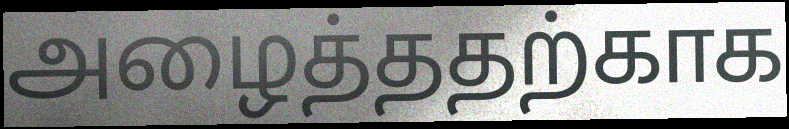
அழைத்ததற்காக